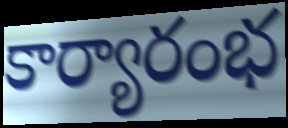
కార్యారంభ